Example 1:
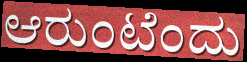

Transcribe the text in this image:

ಆರುಂಟೆಂದು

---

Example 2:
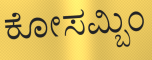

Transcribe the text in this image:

ಕೋಸಮ್ಬಿಂ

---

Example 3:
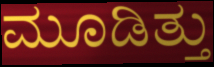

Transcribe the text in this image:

ಮೂಡಿತ್ತು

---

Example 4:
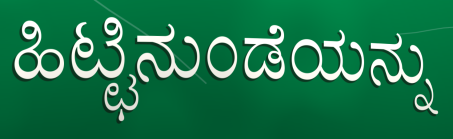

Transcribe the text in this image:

ಹಿಟ್ಟಿನುಂಡೆಯನ್ನು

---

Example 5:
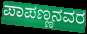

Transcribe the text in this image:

ಪಾಪಣ್ಣನವರ